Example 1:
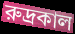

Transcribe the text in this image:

রুদ্রকাল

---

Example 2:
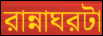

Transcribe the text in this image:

রান্নাঘরটা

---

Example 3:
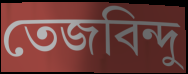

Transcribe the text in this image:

তেজবিন্দু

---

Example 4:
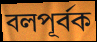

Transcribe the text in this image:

বলপূর্বক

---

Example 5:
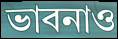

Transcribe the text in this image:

ভাবনাও